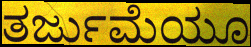
ತರ್ಜುಮೆಯೂ